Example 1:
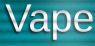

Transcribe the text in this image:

Vape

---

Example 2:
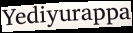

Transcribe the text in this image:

Yediyurappa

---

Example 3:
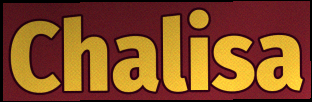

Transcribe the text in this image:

Chalisa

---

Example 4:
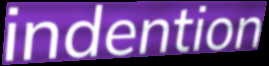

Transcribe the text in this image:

indention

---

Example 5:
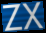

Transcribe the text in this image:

ZX